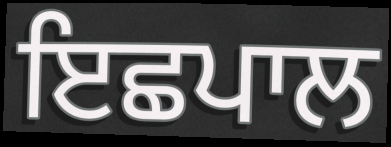
ਇਛਪਾਲ